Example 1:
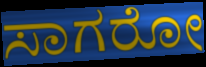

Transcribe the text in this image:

ಸಾಗರೋ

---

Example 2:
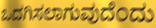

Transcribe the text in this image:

ಒದಗಿಸಲಾಗುವುದೆಂದು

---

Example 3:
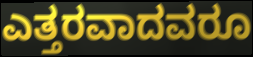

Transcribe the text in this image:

ಎತ್ತರವಾದವರೂ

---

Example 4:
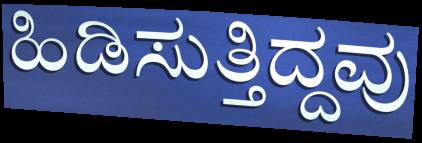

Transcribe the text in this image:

ಹಿಡಿಸುತ್ತಿದ್ದವು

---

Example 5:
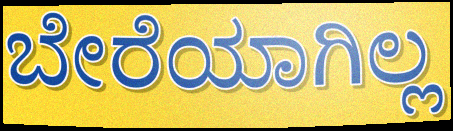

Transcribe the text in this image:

ಬೇರೆಯಾಗಿಲ್ಲ